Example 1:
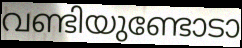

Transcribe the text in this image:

വണ്ടിയുണ്ടോടാ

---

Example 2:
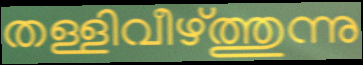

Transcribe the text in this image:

തള്ളിവീഴ്ത്തുന്നു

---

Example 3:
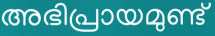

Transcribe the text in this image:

അഭിപ്രായമുണ്ട്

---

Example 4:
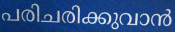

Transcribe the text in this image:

പരിചരിക്കുവാൻ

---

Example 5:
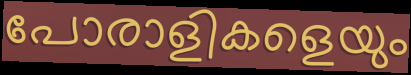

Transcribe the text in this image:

പോരാളികളെയും